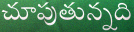
చూపుతున్నది